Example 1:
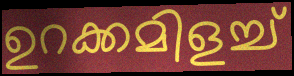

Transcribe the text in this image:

ഉറക്കമിളച്ച്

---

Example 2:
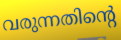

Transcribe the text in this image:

വരുന്നതിന്റെ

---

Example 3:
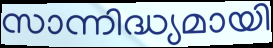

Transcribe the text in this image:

സാന്നിദ്ധ്യമായി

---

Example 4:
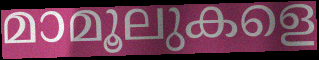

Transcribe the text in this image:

മാമൂലുകളെ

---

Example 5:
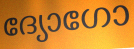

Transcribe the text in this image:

ദ്യോഗോ